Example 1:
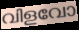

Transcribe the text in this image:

വിളവോ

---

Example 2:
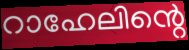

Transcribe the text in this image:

റാഹേലിന്റെ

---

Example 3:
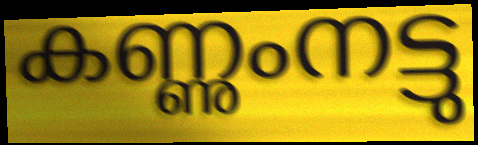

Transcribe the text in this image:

കണ്ണുംനട്ടു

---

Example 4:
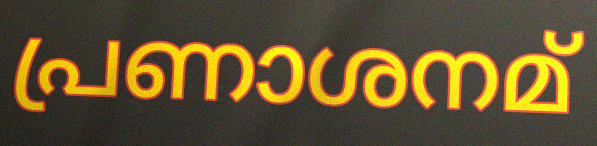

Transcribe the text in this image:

പ്രണാശനമ്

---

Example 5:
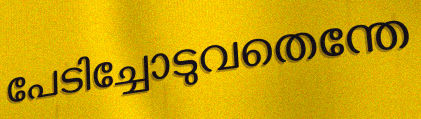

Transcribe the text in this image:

പേടിച്ചോടുവതെന്തേ